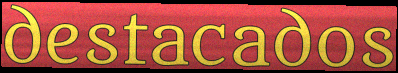
destacados